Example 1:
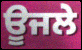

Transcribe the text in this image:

ਊਜਲੇ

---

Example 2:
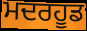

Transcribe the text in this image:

ਮਦਰਹੂਡ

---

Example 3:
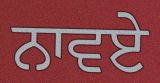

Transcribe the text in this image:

ਨਾਵਏ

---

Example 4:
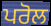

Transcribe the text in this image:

ਪਰੋਲ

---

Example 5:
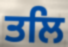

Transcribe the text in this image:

ਤਲਿ